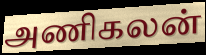
அணிகலன்